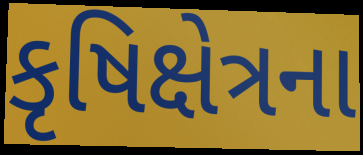
કૃષિક્ષેત્રના